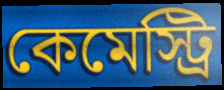
কেমেস্ট্রি